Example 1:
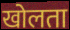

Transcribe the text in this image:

खोलता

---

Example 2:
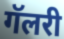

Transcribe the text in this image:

गॅलरी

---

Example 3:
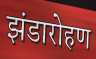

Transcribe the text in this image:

झंडारोहण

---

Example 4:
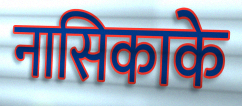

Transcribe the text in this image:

नासिकाके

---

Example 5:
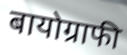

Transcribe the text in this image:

बायोग्राफी